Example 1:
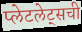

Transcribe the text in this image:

प्लेटलेट्‌सची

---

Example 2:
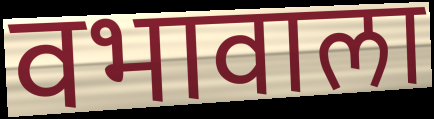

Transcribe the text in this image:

वभावाला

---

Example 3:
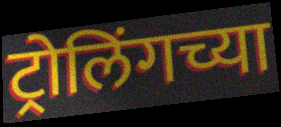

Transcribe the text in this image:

ट्रोलिंगच्या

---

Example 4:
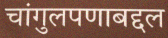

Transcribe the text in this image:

चांगुलपणाबद्दल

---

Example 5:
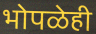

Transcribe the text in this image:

भोपळेही